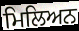
ਮਿਲਿਅਨ